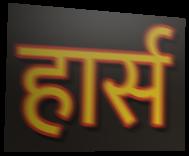
हार्स